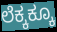
ಲೆಕ್ಕಕ್ಕೂ